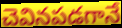
చెవినపడగానే